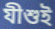
যীশুই